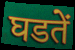
घडतें